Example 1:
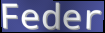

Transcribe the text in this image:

Feder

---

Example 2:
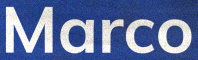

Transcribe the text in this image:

Marco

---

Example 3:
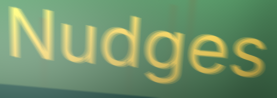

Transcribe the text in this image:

Nudges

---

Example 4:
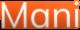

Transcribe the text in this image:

Mani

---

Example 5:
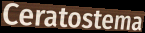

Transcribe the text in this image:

Ceratostema